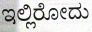
ಇಲ್ಲಿರೋದು